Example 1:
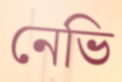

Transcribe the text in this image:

নেভি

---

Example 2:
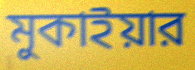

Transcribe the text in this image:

মুকাইয়ার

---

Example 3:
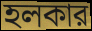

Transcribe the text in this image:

হলকার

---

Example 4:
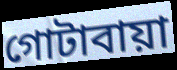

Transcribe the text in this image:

গোটাবায়া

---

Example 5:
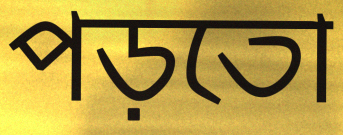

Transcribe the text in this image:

পড়তো